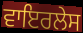
ਵਾਇਰਲੇਸ